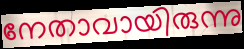
നേതാവായിരുന്നു